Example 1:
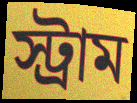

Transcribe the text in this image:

স্ট্রাম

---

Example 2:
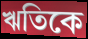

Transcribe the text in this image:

ঋতিকে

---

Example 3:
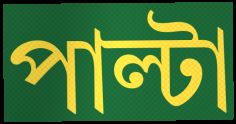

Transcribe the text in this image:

পাল্টা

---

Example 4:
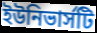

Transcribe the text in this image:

ইউনিভার্সটি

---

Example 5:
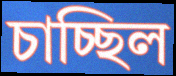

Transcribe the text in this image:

চাচ্ছিল